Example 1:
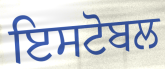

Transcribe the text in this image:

ਇਸਟੋਬਲ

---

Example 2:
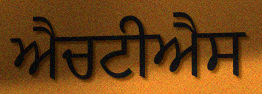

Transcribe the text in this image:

ਐਚਟੀਐਸ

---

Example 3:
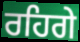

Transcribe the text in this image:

ਰਹਿਗੇ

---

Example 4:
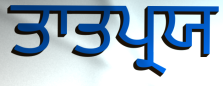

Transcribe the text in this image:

ਤਾਤਪ੍ਰਯ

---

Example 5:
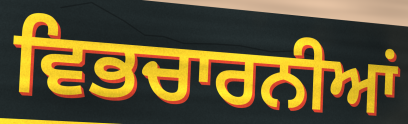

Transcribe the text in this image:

ਵਿਭਚਾਰਨੀਆਂ